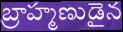
బ్రాహ్మణుడైన